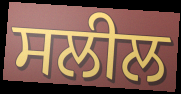
ਸਲੀਲ